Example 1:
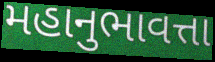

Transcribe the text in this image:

મહાનુભાવત્તા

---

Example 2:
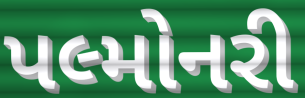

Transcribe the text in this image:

પલ્મોનરી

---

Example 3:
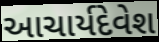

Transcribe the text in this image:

આચાર્યદેવેશ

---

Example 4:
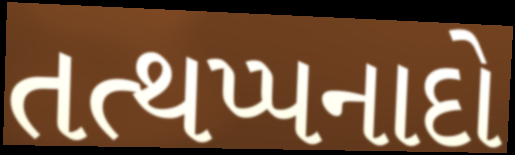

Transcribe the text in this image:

તત્થપ્પનાદો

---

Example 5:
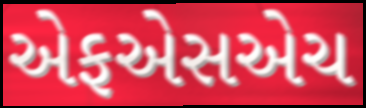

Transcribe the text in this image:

એફએસએચ